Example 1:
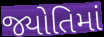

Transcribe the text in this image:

જ્યોતિમાં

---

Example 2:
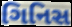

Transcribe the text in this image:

ગિનિસ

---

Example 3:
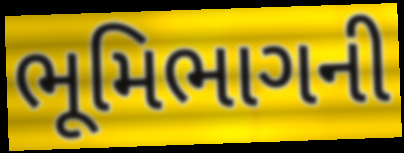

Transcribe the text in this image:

ભૂમિભાગની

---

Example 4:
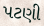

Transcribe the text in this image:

પટણી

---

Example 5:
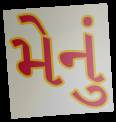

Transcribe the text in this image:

મેનું